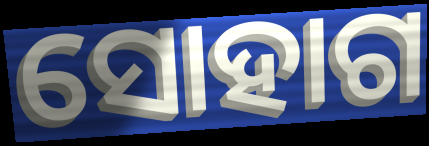
ସୋହାଗ